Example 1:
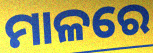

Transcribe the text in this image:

ମାଳରେ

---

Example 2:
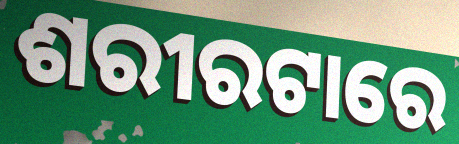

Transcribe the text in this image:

ଶରୀରଟାରେ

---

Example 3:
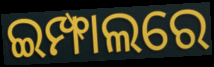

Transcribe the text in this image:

ଇମ୍ଫାଲରେ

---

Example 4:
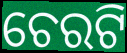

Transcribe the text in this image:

ଚେରଟି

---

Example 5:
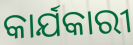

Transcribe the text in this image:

କାର୍ଯକାରୀ